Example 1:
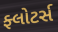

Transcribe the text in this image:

ફ્લોટર્સ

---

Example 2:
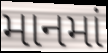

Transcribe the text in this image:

માનમાં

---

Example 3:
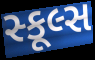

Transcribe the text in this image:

સ્કૂલ્સ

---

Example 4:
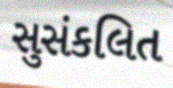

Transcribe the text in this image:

સુસંકલિત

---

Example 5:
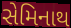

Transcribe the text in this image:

સેમિનાથ